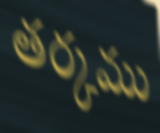
తర్కము